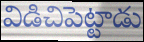
విడిచిపెట్టాడు